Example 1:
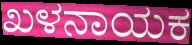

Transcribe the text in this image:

ಖಳನಾಯಕ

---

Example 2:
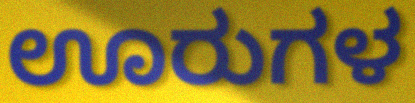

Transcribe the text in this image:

ಊರುಗಳ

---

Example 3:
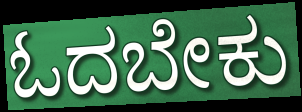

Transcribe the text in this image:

ಓದಬೇಕು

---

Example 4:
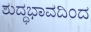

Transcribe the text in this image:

ಶುದ್ಧಭಾವದಿಂದ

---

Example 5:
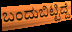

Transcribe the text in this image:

ಬಂದುಬಿಟ್ಟಿದ್ದೆ